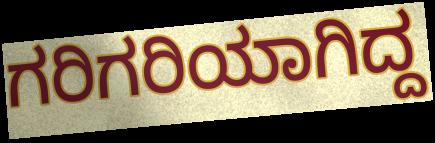
ಗರಿಗರಿಯಾಗಿದ್ದ